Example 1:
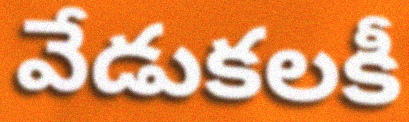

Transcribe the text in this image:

వేడుకలకీ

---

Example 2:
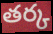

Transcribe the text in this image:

తర్క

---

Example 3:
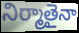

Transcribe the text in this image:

నిర్మాతైనా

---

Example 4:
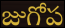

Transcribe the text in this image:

జుగోప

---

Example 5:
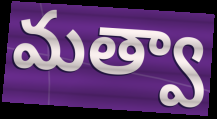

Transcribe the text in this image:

మత్వా